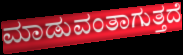
ಮಾಡುವಂತಾಗುತ್ತದೆ